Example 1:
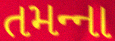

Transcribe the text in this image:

તમન્‍ના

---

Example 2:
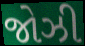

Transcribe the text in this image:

જોઝી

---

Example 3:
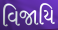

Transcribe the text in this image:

વિજાયિ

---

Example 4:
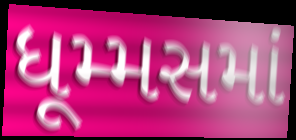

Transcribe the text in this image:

ધૂમ્મસમાં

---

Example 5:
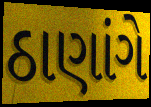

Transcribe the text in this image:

ઠાણાંગે